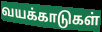
வயக்காடுகள்